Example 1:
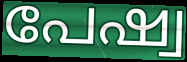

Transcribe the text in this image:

പേഷ്വ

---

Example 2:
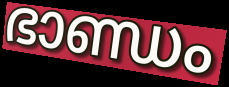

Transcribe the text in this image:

ഭാണ്ഡം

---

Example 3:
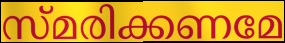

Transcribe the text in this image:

സ്മരിക്കണമേ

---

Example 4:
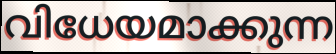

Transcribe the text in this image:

വിധേയമാക്കുന്ന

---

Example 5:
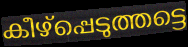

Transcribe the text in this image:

കീഴ്പ്പെടുത്തട്ടെ